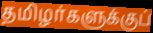
தமிழர்களுக்குப்